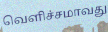
வெளிச்சமாவது